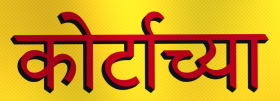
कोर्टाच्या